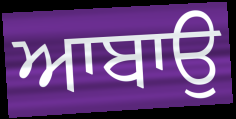
ਆਬਾਉ